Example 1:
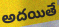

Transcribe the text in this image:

అదయితే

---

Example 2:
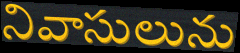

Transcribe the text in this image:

నివాసులును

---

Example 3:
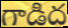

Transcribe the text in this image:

గాడిద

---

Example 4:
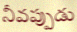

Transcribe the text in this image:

నీవప్పుడు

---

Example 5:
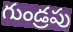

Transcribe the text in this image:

గుండ్రపు